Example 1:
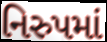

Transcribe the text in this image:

નિરુપમાં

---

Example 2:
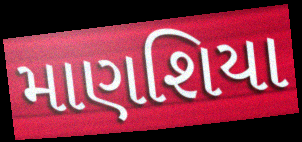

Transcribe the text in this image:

માણશિયા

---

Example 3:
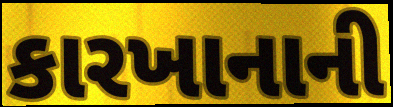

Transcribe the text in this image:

કારખાનાની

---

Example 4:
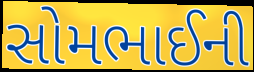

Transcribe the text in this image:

સોમભાઈની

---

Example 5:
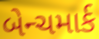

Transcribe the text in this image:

બેન્ચમાર્ક